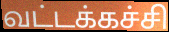
வட்டக்கச்சி